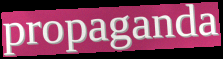
propaganda